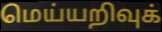
மெய்யறிவுக்